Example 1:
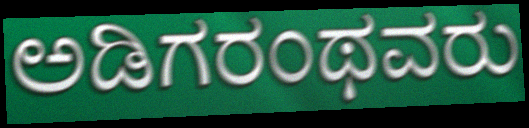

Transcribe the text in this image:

ಅಡಿಗರಂಥವರು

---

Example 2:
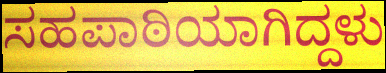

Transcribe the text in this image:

ಸಹಪಾಠಿಯಾಗಿದ್ದಳು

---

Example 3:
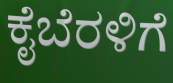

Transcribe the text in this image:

ಕೈಬೆರಳಿಗೆ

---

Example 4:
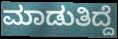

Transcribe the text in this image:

ಮಾಡುತಿದ್ದೆ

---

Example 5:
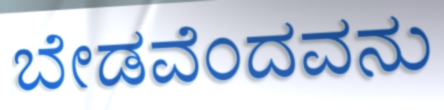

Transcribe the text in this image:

ಬೇಡವೆಂದವನು